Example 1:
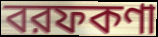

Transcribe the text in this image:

বরফকণা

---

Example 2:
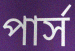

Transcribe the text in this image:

পার্স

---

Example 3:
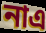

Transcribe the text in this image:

নাএ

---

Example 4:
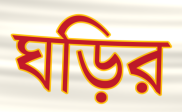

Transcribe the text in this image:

ঘড়ির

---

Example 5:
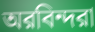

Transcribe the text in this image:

অরবিন্দরা